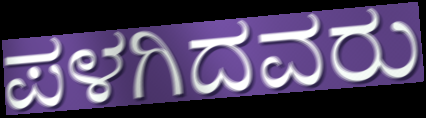
ಪಳಗಿದವರು